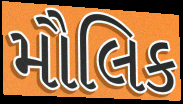
મૌલિક